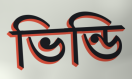
ভিন্ডি